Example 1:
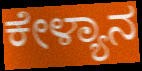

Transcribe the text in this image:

ಕೇಳ್ಯಾನ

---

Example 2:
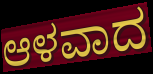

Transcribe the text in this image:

ಆಳವಾದ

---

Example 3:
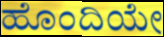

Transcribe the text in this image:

ಹೊಂದಿಯೇ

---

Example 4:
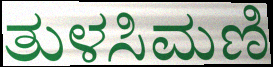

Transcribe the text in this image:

ತುಳಸಿಮಣಿ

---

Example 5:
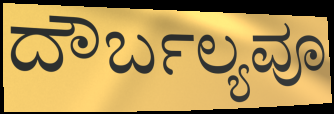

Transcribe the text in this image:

ದೌರ್ಬಲ್ಯವೂ